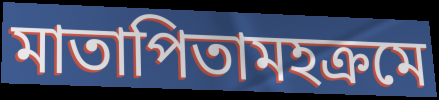
মাতাপিতামহক্রমে